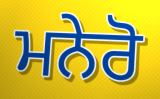
ਮਨੇਰੋ